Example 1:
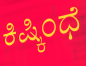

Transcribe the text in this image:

ಕಿಷ್ಕಿಂಧೆ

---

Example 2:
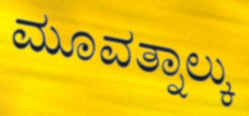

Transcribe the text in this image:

ಮೂವತ್ನಾಲ್ಕು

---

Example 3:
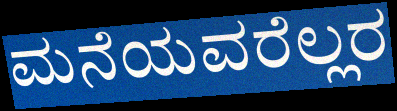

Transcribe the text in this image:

ಮನೆಯವರೆಲ್ಲರ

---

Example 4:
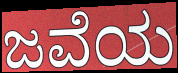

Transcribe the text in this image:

ಜವೆಯ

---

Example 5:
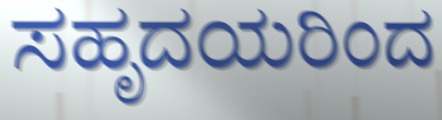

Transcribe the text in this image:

ಸಹೃದಯರಿಂದ